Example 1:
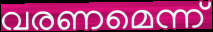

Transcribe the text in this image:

വരണമെന്ന്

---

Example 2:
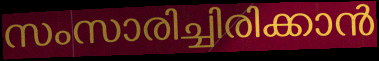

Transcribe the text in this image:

സംസാരിച്ചിരിക്കാൻ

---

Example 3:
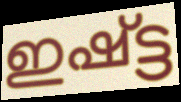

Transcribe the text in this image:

ഇഷ്ട്ട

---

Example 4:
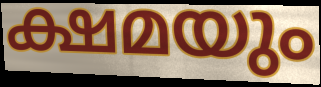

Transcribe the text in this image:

ക്ഷമയും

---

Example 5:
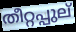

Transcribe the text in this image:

തീറ്റപ്പുല്